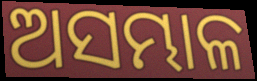
ଅସମ୍ଭାଳ